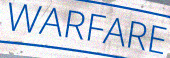
WARFARE